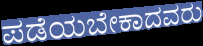
ಪಡೆಯಬೇಕಾದವರು